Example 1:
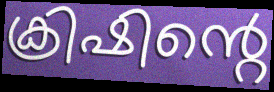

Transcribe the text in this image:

ക്രിഷിന്റെ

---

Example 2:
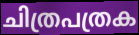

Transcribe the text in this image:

ചിത്രപത്രക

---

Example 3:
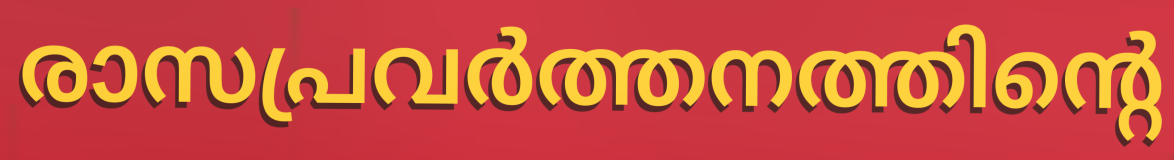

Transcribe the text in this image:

രാസപ്രവർത്തനത്തിന്റെ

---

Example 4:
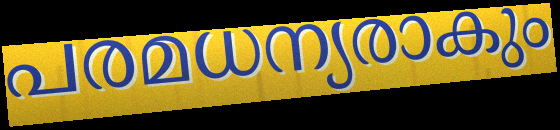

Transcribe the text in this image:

പരമധന്യരാകും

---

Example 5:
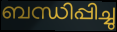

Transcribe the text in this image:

ബന്ധിപ്പിച്ചു